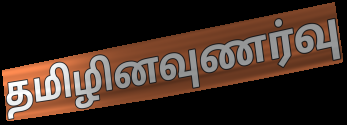
தமிழினவுணர்வு